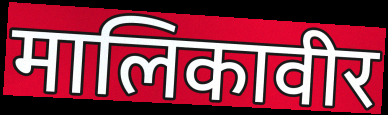
मालिकावीर